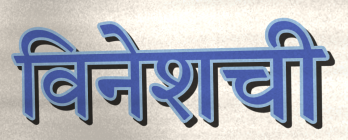
विनेशची